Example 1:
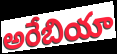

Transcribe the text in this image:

అరేబియా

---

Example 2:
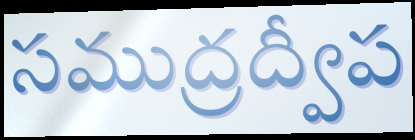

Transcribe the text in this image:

సముద్రద్వీప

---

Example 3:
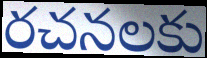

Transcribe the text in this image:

రచనలకు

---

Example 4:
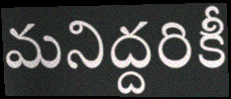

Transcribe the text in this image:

మనిద్దరికీ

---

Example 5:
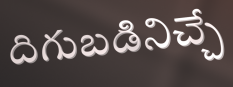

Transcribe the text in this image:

దిగుబడినిచ్చే